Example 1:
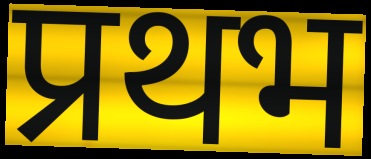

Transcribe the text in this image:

प्रथभ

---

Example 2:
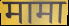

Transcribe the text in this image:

मामा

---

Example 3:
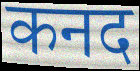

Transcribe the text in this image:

कनद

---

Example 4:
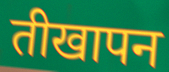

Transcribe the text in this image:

तीखापन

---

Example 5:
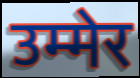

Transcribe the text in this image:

उम्मेर